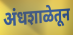
अंधशाळेतून